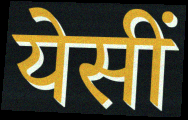
येसीं